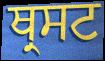
ਥ੍ਰਸਟ